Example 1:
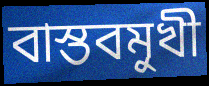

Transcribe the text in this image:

বাস্তবমুখী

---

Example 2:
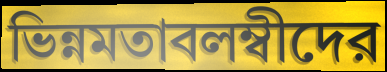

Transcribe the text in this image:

ভিন্নমতাবলম্বীদের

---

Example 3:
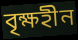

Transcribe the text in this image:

বৃক্ষহীন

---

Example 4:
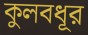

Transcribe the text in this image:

কুলবধূর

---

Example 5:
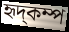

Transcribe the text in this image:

হৃদ্কম্প